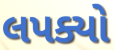
લપક્યો